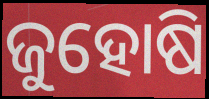
ଜୁହୋଷି